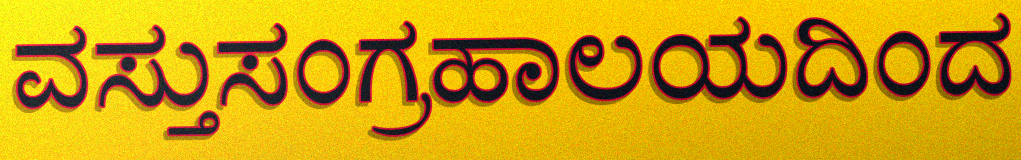
ವಸ್ತುಸಂಗ್ರಹಾಲಯದಿಂದ